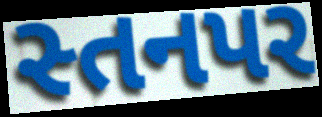
સ્તનપર